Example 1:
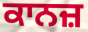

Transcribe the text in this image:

ਕਾਨਜ਼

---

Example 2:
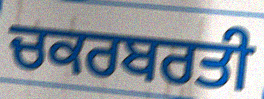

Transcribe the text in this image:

ਚਕਰਬਰਤੀ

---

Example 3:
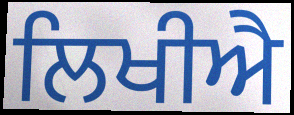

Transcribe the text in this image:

ਲਿਖੀਐ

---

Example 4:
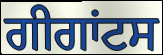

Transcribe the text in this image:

ਗੀਗਾਂਟਸ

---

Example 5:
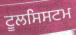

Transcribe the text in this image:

ਟੂਲਸਿਸਟਮ